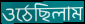
ওঠেছিলাম